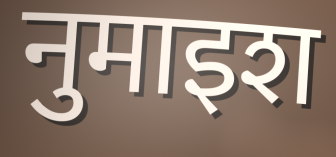
नुमाइश